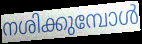
നശിക്കുമ്പോൾ